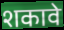
शकावे